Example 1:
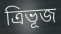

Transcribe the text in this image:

ত্ৰিভূজ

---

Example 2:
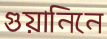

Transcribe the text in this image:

গুয়ানিনে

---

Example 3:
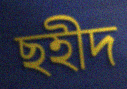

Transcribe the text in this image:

ছহীদ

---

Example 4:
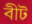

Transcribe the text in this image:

বীট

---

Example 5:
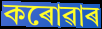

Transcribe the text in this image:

কৰোৱাৰ